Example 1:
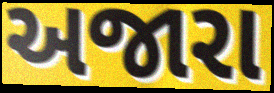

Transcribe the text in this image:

અજારા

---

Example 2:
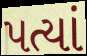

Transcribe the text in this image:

પત્યાં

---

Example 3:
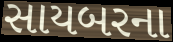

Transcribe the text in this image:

સાયબરના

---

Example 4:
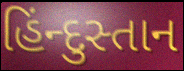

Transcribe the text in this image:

હિંન્દુસ્તાન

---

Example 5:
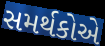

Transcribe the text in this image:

સમર્થકોએ